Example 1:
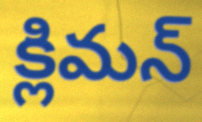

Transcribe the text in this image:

క్లిమన్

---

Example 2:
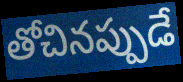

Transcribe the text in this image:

తోచినప్పుడే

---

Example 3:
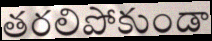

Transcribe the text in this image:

తరలిపోకుండా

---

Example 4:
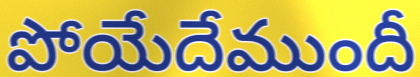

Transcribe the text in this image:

పోయేదేముందీ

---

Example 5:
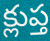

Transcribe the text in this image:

క్లుప్త